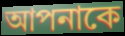
আপনাকে